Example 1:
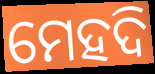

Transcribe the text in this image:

ମେହଦି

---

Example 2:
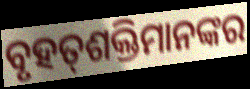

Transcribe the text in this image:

ବୃହତ୍‌ଶକ୍ତିମାନଙ୍କର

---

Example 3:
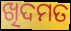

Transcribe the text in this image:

ଖିଦମତ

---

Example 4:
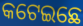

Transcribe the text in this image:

କଟେଇଛେ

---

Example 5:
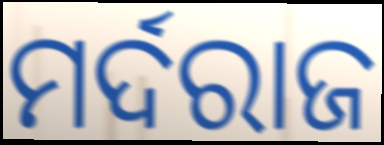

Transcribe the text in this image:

ମର୍ଦରାଜ